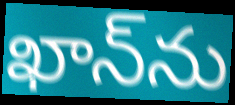
ఖాన్‌ను